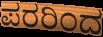
ಪರರಿಂದ